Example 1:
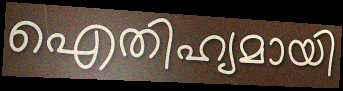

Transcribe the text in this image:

ഐതിഹ്യമായി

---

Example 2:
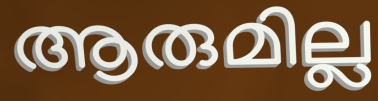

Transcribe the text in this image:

ആരുമില്ല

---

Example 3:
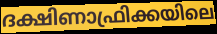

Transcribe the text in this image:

ദക്ഷിണാഫ്രിക്കയിലെ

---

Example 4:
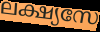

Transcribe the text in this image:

ലക്ഷ്യസേ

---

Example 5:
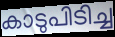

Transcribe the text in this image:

കാടുപിടിച്ച